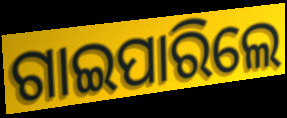
ଗାଇପାରିଲେ